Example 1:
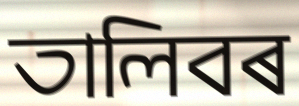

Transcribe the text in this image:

তালিবৰ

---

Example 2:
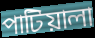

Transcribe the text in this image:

পাটিয়ালা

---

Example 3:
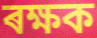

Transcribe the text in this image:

ৰক্ষক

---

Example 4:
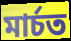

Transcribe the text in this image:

মাৰ্চত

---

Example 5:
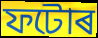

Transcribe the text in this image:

ফটোৰ